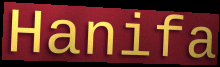
Hanifa